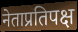
नेताप्रतिपक्ष